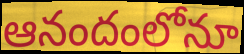
ఆనందంలోనూ